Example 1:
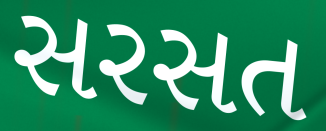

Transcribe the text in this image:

સરસત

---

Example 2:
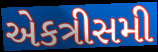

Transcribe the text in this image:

એકત્રીસમી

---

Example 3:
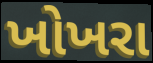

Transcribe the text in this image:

ખોખરા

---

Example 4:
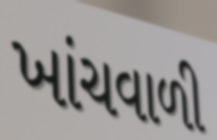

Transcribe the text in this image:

ખાંચવાળી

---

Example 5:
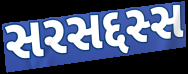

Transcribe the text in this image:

સરસદ્દસ્સ